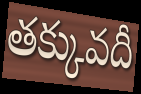
తక్కువదీ